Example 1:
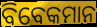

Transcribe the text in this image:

ବିବେକମାନ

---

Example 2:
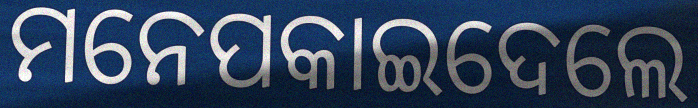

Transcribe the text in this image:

ମନେପକାଇଦେଲେ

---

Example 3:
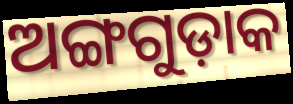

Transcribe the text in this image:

ଅଙ୍ଗଗୁଡ଼ାକ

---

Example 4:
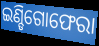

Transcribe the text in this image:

ଇଣ୍ଡିଗୋଫେରା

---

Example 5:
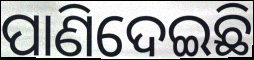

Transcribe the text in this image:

ପାଣିଦେଇଛି